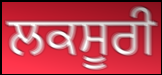
ਲਕਸੂਰੀ